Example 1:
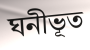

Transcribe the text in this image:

ঘনীভূত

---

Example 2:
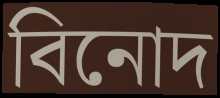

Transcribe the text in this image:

বিনোদ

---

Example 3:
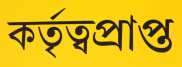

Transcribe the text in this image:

কৰ্তৃত্বপ্ৰাপ্ত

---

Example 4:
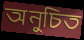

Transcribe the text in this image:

অনুচিত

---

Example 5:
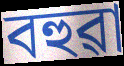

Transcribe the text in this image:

বহুৱা